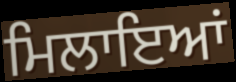
ਮਿਲਾਇਆਂ